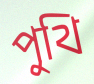
পুথি